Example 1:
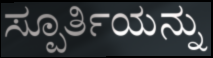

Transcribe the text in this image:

ಸ್ಪೂರ್ತಿಯನ್ನು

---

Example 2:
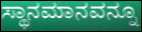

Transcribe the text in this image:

ಸ್ಥಾನಮಾನವನ್ನೂ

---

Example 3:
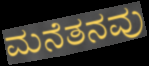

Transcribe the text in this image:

ಮನೆತನವು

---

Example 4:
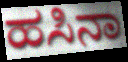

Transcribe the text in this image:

ಹಸಿನಾ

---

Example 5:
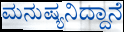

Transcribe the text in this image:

ಮನುಷ್ಯನಿದ್ದಾನೆ